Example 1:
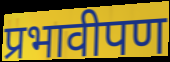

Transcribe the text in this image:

प्रभावीपण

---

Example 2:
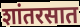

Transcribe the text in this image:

शांतरसात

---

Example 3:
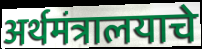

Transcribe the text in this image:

अर्थमंत्रालयाचे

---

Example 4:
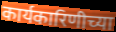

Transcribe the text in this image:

कार्यकारिणीच्या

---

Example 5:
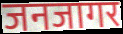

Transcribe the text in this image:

जनजागर